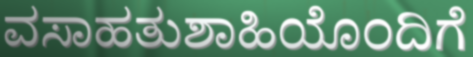
ವಸಾಹತುಶಾಹಿಯೊಂದಿಗೆ